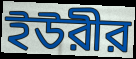
ইউরীর